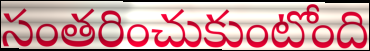
సంతరించుకుంటోంది